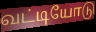
வட்டியோடு